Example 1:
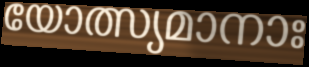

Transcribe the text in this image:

യോത്സ്യമാനാഃ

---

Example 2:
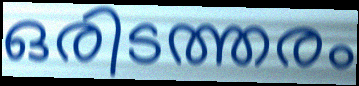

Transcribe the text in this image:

ഒരിടത്തരം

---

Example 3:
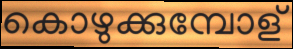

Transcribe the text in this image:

കൊഴുക്കുമ്പോള്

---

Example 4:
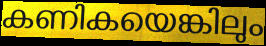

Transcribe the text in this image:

കണികയെങ്കിലും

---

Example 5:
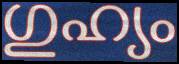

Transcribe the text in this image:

ഗുഹ്യം